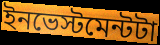
ইনভেস্টমেন্টটা